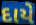
દાયે